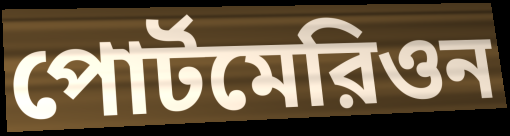
পোর্টমেরিওন